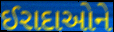
ઈરાદાઓને